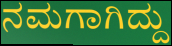
ನಮಗಾಗಿದ್ದು